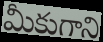
మీకుగాని